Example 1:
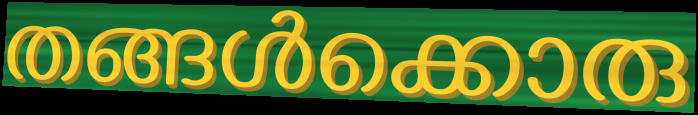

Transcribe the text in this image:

തങ്ങൾക്കൊരു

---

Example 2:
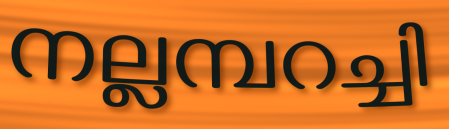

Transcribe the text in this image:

നല്ലമ്പറച്ചി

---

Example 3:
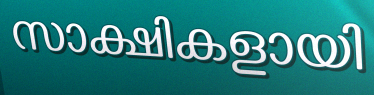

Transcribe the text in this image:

സാക്ഷികളായി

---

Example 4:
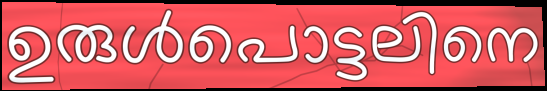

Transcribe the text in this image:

ഉരുൾപൊട്ടലിനെ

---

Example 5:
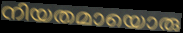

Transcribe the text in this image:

നിയതമായൊരു